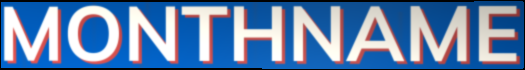
MONTHNAME